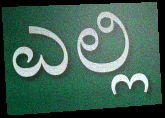
ಎಲ್ಲಿ